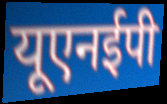
यूएनईपी